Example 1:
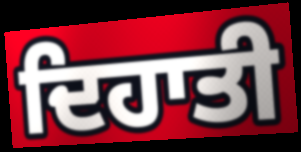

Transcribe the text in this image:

ਦਿਹਾਤੀ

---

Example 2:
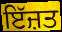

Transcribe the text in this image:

ਇੱਜ਼ਤ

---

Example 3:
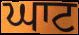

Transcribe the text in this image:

ਘਾਟ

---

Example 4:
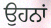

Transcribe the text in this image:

ਉਹਨਾਂ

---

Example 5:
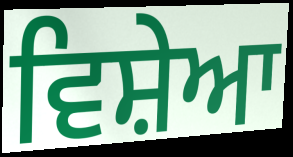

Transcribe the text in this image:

ਵਿਸ਼ੇਆ